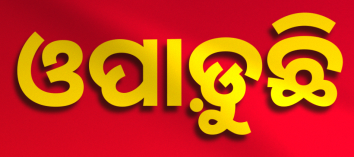
ଓପାଡ଼ୁଛି